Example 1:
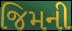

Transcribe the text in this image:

જિમની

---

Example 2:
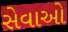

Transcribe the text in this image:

સેવાઓ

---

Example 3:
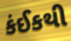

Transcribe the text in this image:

કંઈકથી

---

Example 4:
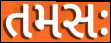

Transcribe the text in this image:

તમસઃ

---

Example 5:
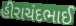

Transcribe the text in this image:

હીરાચંદભાઈ